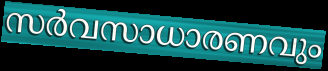
സർവസാധാരണവും